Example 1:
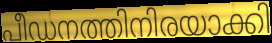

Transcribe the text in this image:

പീഡനത്തിനിരയാക്കി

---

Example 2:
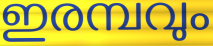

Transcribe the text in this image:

ഇരമ്പവും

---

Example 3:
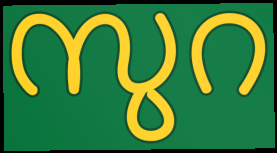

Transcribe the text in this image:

സുറ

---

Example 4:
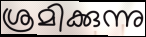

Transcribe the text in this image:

ശ്രമിക്കുന്നു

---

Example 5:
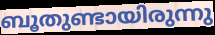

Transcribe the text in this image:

ബൂതുണ്ടായിരുന്നു